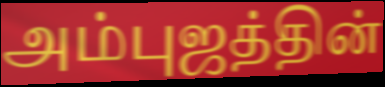
அம்புஜத்தின்